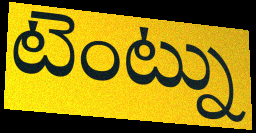
టెంట్ను